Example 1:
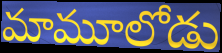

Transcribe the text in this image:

మామూలోడు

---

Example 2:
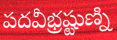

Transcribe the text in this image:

పదవీభ్రష్టుణ్ని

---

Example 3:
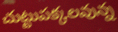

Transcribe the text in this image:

చుట్టుపక్కలవున్న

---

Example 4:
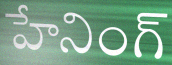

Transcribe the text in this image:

హేనింగ్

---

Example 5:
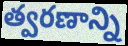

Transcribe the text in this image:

త్వరణాన్ని